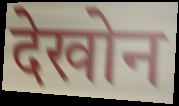
देखोन